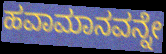
ಹವಾಮಾನವನ್ನೇ